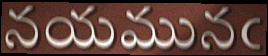
నయమునఁ